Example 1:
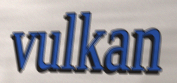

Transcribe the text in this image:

vulkan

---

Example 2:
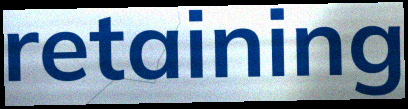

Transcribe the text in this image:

retaining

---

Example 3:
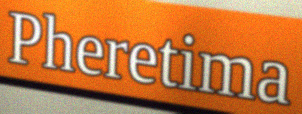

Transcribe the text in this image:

Pheretima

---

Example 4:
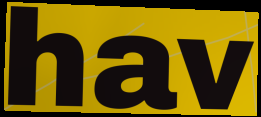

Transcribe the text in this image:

hav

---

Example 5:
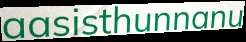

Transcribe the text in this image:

aasisthunnanu